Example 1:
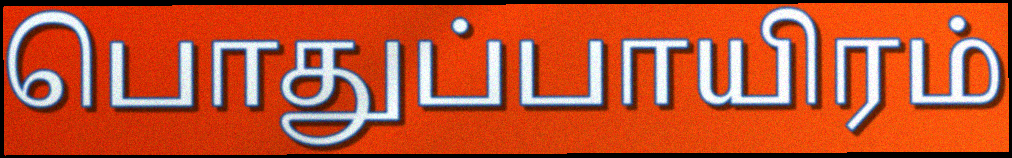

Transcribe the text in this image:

பொதுப்பாயிரம்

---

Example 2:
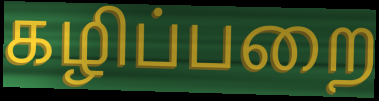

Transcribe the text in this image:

கழிப்பறை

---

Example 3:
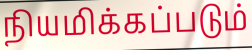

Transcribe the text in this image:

நியமிக்கப்படும்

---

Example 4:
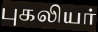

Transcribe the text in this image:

புகலியர்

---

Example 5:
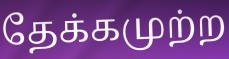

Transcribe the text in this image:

தேக்கமுற்ற